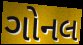
ગોનલ